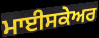
ਮਾਈਸਕੇਅਰ